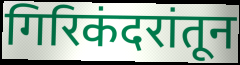
गिरिकंदरांतून